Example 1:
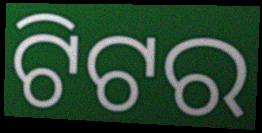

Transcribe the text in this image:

ଟିଟର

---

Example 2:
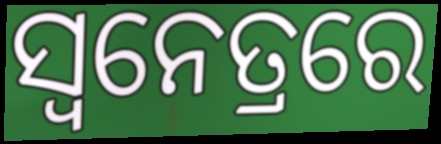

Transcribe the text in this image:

ସ୍ୱନେତ୍ରରେ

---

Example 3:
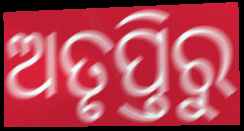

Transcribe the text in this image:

ଅତୃପ୍ତିରୁ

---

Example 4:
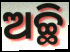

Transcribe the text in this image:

ଅଚ୍ଛି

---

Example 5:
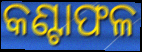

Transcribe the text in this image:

କଣ୍ଟାଫଳ